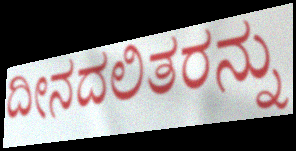
ದೀನದಲಿತರನ್ನು